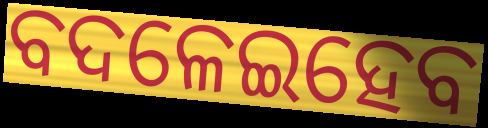
ବଦଳେଇହେବ